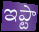
ఇప్టా